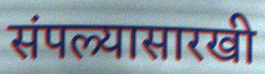
संपल्यासारखी